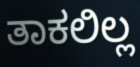
ತಾಕಲಿಲ್ಲ